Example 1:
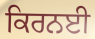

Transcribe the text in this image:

ਕਿਰਨਈ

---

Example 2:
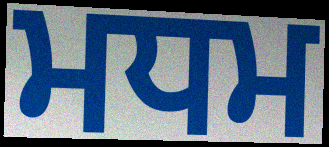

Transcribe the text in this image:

ਮਧਮ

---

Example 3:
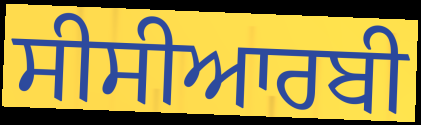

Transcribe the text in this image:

ਸੀਸੀਆਰਬੀ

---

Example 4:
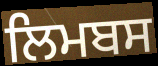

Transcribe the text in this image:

ਲਿਮਬਸ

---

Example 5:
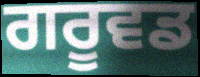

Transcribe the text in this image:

ਗਰੂਵਡ